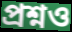
প্রশ্নও